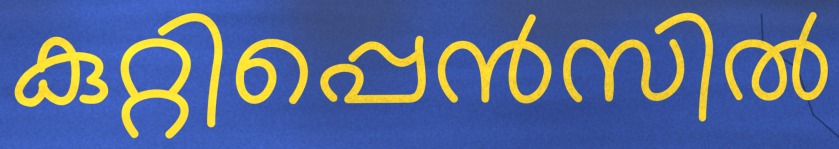
കുറ്റിപ്പെൻസിൽ